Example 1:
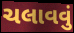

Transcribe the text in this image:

ચલાવવું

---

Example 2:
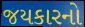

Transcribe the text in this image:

જયકારનો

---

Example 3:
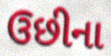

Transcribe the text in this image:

ઉછીના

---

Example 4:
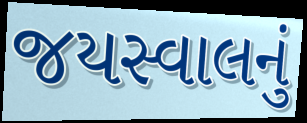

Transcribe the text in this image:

જયસ્વાલનું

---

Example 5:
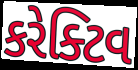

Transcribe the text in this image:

કરેક્ટિવ